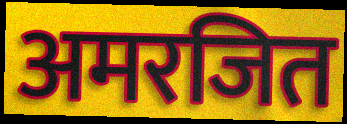
अमरजित